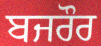
ਬਜਰੌਰ